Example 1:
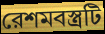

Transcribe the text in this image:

রেশমবস্ত্রটি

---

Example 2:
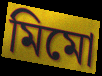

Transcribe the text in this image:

মিমো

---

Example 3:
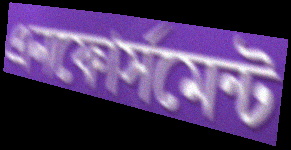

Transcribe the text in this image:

এনফোর্সমেন্ট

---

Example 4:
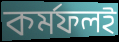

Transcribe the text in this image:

কর্মফলই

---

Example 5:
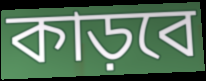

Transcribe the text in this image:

কাড়বে